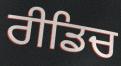
ਰੀਡਿਚ